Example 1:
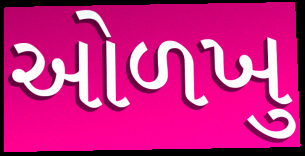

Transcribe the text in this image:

ઓળખુ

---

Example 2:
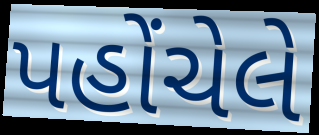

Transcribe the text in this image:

પહોંચેલે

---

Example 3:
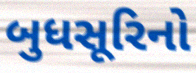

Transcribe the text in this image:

બુધસૂરિનો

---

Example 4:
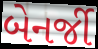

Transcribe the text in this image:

બેનર્જી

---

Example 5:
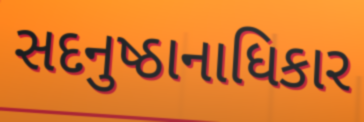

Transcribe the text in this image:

સદનુષ્ઠાનાધિકાર